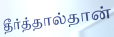
தீர்த்தால்தான்